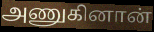
அணுகினான்